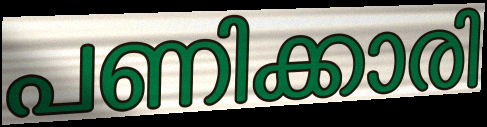
പണിക്കാരി